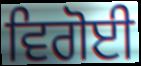
ਵਿਗੋਈ